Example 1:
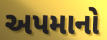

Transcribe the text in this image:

અપમાનો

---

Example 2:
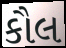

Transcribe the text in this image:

કૌલ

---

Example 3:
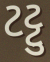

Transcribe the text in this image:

ટટ્ટુ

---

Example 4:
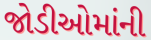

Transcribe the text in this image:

જોડીઓમાંની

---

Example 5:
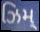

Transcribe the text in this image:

ઝિમ્